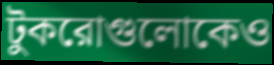
টুকরোগুলোকেও